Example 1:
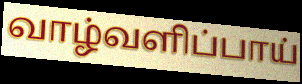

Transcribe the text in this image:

வாழ்வளிப்பாய்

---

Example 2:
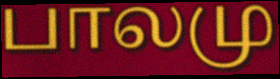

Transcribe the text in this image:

பாலமு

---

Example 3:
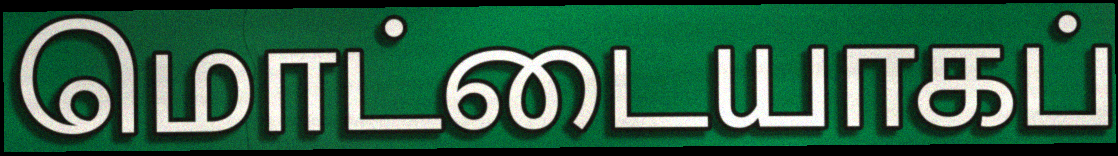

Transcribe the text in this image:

மொட்டையாகப்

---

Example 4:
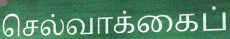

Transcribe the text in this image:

செல்வாக்கைப்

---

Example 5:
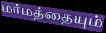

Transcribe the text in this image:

மர்மத்தையும்